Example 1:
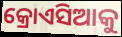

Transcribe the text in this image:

କ୍ରୋଏସିଆକୁ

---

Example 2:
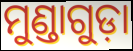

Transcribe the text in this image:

ମୁଣ୍ଡାଗୁଡ଼ା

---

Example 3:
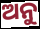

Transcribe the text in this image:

ଅନୁ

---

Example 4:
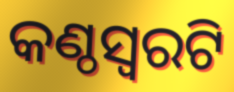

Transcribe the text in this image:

କଣ୍ଠସ୍ଵରଟି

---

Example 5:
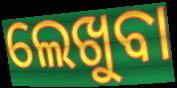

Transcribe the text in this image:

ଲେଖୁବା